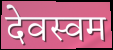
देवस्वम